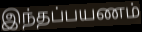
இந்தப்பயணம்